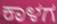
ಕಾಳಗ